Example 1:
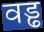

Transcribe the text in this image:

वड्ढ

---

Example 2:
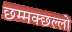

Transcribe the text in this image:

छम्मक्छल्लो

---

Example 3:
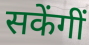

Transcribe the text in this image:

सकेंगीं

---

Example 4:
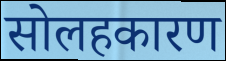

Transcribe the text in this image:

सोलहकारण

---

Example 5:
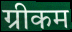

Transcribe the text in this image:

ग्रीकम